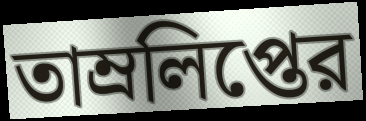
তাম্রলিপ্তের